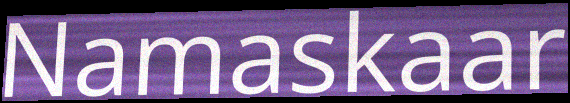
Namaskaar